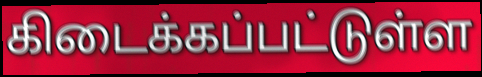
கிடைக்கப்பட்டுள்ள